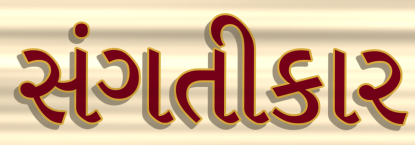
સંગતીકાર